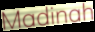
Madinah